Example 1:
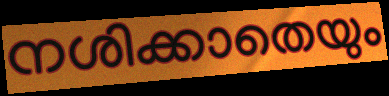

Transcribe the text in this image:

നശിക്കാതെയും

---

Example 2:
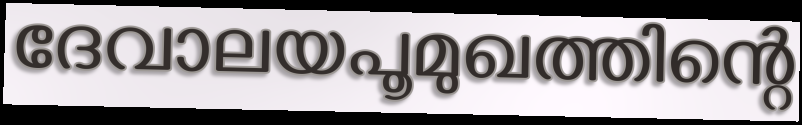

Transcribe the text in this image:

ദേവാലയപൂമുഖത്തിന്റെ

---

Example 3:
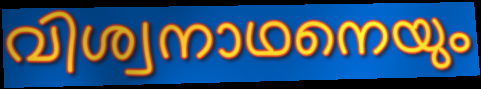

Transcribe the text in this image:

വിശ്വനാഥനെയും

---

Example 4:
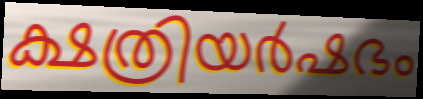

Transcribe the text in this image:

ക്ഷത്രിയർഷഭം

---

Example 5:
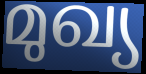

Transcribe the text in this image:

മുഖ്യ